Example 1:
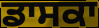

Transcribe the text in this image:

ਡਾਸਕਾ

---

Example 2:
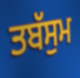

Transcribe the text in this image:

ਤਬੱਸੁਮ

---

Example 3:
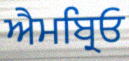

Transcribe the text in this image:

ਐਮਬ੍ਰਿਓ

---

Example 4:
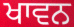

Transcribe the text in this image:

ਖਾਵਨ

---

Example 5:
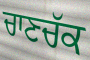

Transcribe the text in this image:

ਚਾਣਚੱਕ